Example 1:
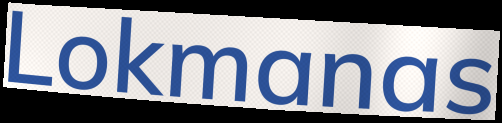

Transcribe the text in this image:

Lokmanas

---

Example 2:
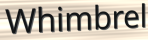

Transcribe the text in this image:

Whimbrel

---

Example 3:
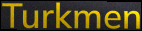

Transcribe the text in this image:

Turkmen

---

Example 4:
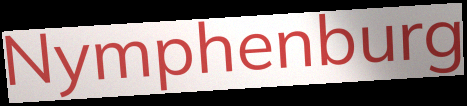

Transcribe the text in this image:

Nymphenburg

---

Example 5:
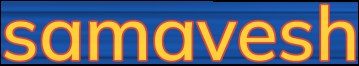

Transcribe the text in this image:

samavesh